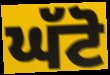
ਘੱਟੋ